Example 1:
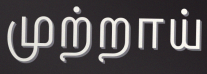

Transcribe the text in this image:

முற்றாய்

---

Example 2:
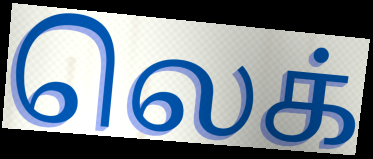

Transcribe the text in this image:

லெக்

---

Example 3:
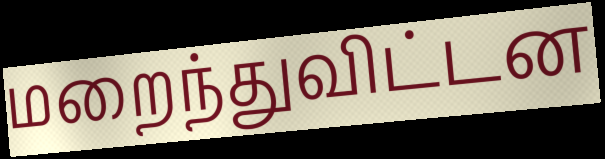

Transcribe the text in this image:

மறைந்துவிட்டன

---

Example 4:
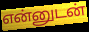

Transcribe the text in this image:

என்னுடன்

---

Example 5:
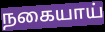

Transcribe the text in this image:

நகையாய்